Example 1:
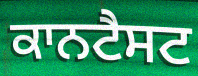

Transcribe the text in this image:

ਕਾਨਟੈਸਟ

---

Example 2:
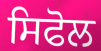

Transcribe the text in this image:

ਸਿਫੋਲ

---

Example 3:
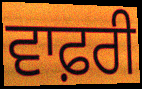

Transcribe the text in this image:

ਵਾਫ਼ਰੀ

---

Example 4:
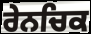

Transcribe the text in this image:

ਰੇਨਚਿਕ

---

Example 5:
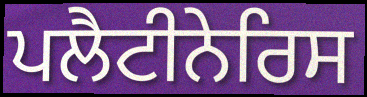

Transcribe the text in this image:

ਪਲੈਟੀਨੇਰਿਸ